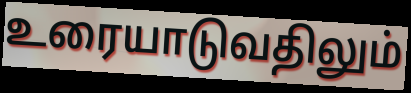
உரையாடுவதிலும்